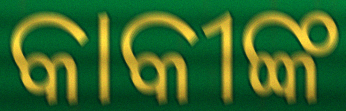
କାକୀଙ୍କ